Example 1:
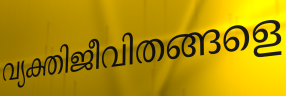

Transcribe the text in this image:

വ്യക്തിജീവിതങ്ങളെ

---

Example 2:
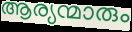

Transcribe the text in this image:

ആര്യന്മാരും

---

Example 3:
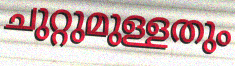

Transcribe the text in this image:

ചുറ്റുമുള്ളതും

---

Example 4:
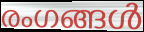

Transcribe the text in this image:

രംഗങ്ങൾ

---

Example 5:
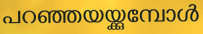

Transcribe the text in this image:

പറഞ്ഞയയ്ക്കുമ്പോൾ